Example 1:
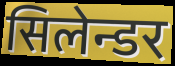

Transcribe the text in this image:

सिलेन्डर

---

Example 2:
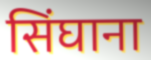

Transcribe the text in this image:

सिंघाना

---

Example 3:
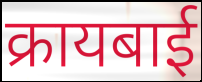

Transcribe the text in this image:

क्रायबाई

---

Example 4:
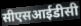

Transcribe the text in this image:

सीएसआईडीसी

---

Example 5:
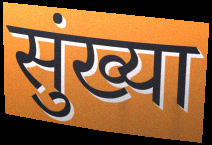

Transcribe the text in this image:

सुंख्या